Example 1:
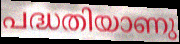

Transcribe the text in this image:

പദ്ധതിയാണു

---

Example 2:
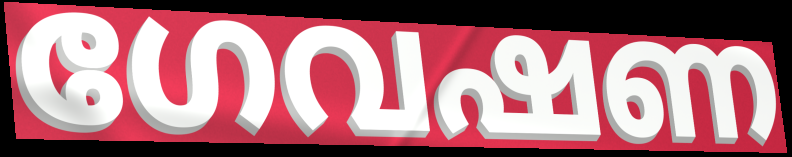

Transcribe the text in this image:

ഗേവഷണ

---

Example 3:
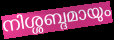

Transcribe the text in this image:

നിശ്ശബ്ദമായും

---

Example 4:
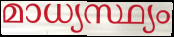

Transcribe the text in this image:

മാധ്യസ്ഥ്യം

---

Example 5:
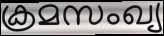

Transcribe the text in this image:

ക്രമസംഖ്യ